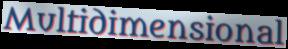
Multidimensional